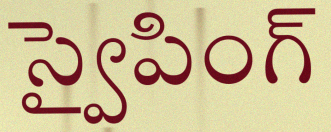
స్వైపింగ్